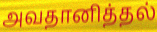
அவதானித்தல்